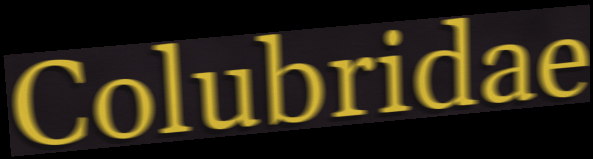
Colubridae